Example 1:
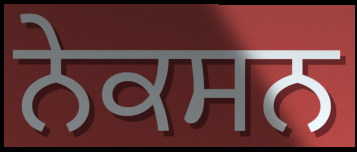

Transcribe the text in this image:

ਨੇਕਸਨ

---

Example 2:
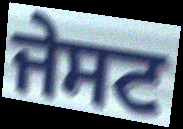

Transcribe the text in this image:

ਜੇਸਟ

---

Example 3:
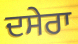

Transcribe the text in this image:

ਦਸੇਰਾ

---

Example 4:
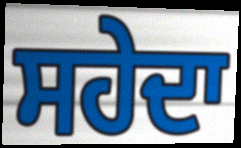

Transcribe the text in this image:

ਸਹੇਦਾ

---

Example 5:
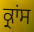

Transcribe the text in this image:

ਕ੍ਰਾਂਸ